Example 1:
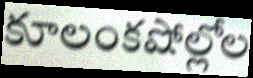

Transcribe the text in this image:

కూలంకషోల్లోల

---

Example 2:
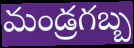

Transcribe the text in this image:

మండ్రగబ్బ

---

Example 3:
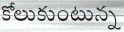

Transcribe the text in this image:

కోలుకుంటున్న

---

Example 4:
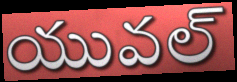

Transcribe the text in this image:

యువల్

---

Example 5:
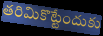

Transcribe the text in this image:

తరిమికొట్టేందుకు